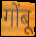
गोंबू